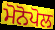
ਮੋਨੋਪੋਲ